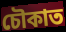
চৌকাত